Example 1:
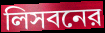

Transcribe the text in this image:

লিসবনের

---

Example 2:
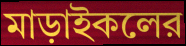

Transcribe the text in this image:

মাড়াইকলের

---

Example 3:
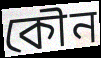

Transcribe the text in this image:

কৌন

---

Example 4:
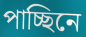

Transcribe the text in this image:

পাচ্ছিনে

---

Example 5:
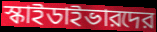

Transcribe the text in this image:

স্কাইডাইভারদের